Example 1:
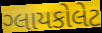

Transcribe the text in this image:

ગ્લાયકોલેટ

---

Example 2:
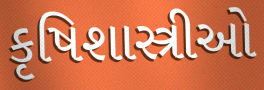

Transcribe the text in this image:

કૃષિશાસ્ત્રીઓ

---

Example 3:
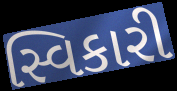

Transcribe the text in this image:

સ્વિકારી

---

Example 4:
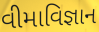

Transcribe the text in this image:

વીમાવિજ્ઞાન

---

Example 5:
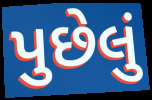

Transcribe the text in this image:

પુછેલું